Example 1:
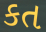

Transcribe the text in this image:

કત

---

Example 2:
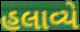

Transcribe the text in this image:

હલાવ્યે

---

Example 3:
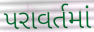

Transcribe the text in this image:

પરાવર્તમાં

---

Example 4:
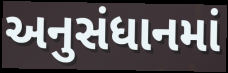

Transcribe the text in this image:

અનુસંધાનમાં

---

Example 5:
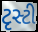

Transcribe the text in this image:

ટૃસ્ટી